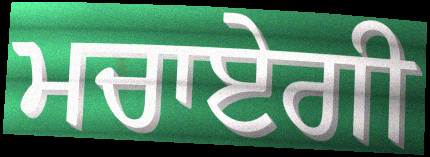
ਮਚਾਏਗੀ